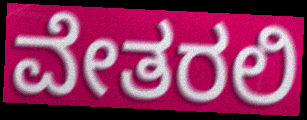
ವೇತರಲಿ